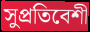
সুপ্রতিবেশী